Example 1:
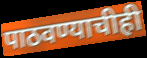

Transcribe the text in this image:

पाठवण्याचीही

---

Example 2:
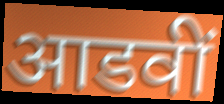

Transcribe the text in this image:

आडवीं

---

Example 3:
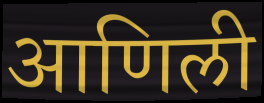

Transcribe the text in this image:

आणिली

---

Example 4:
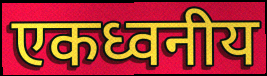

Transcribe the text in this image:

एकध्वनीय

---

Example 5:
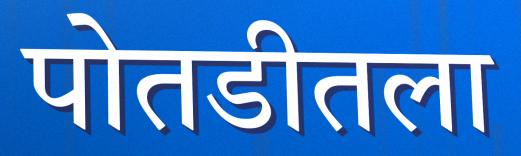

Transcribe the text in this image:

पोतडीतला